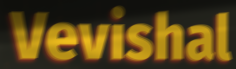
Vevishal